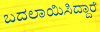
ಬದಲಾಯಿಸಿದ್ದಾರೆ